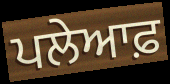
ਪਲੇਆਫ਼